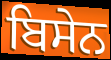
ਬਿਸੇਨ